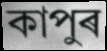
কাপুৰ